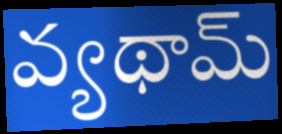
వ్యథామ్